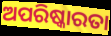
ଅପରିଷ୍କାରତା